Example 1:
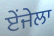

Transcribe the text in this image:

ਏਂਜੇਲਾ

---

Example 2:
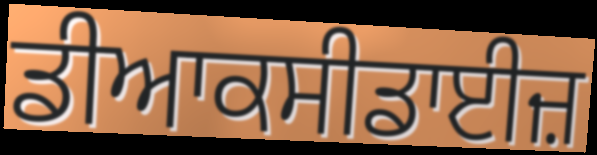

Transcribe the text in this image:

ਡੀਆਕਸੀਡਾਈਜ਼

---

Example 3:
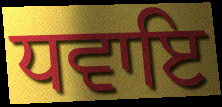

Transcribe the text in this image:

ਧਵਾਇ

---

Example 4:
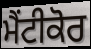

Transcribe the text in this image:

ਮੈਂਟੀਕੋਰ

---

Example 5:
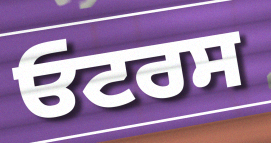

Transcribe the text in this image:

ਓਟਰਸ